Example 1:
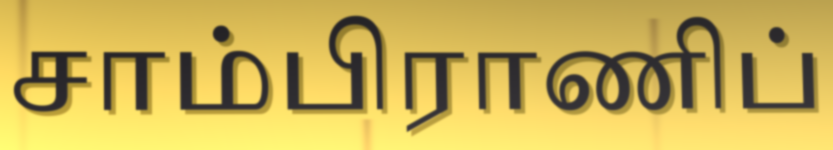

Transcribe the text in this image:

சாம்பிராணிப்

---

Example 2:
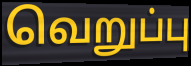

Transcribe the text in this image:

வெறுப்பு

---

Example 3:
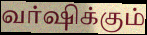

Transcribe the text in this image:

வர்ஷிக்கும்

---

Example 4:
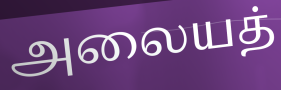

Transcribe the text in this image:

அலையத்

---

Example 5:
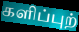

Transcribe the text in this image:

களிப்புற்